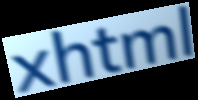
xhtml